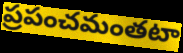
ప్రపంచమంతటా